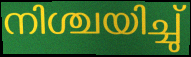
നിശ്ചയിച്ചു്